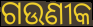
ଗଉଣୀକ